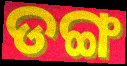
ଡଙ୍ଗ